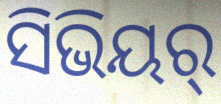
ସିଭିୟର୍